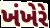
ખંખેરે